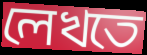
লেখতে